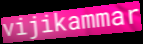
vijikammar